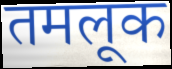
तमलूक